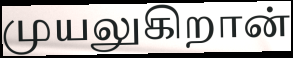
முயலுகிறான்